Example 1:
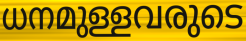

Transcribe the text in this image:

ധനമുള്ളവരുടെ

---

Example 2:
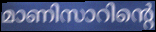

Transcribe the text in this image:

മാണിസാറിന്റെ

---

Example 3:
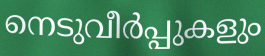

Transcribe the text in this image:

നെടുവീർപ്പുകളും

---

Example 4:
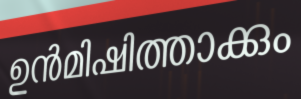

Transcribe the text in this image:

ഉൻമിഷിത്താക്കും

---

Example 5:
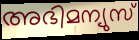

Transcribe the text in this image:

അഭിമന്യുസ്